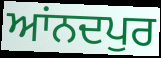
ਆਂਨਦਪੁਰ